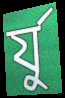
র্যু